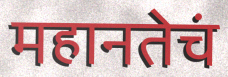
महानतेचं